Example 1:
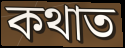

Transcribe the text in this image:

কথাত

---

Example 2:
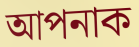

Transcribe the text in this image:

আপনাক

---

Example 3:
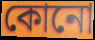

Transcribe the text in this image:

কোনো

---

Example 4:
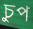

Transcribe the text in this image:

চুপ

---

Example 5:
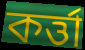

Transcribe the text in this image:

কৰ্ত্তা